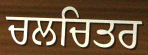
ਚਲਚਿਤਰ